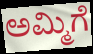
ಅಮ್ಮಿಗೆ